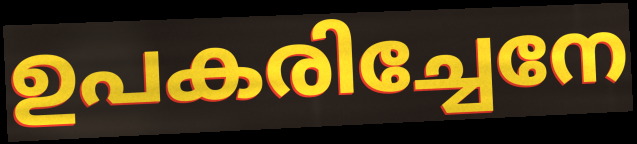
ഉപകരിച്ചേനേ